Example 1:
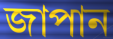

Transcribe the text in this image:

জাপান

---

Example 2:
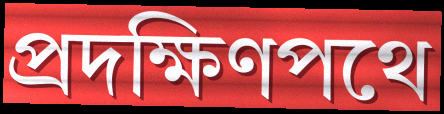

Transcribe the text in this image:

প্রদক্ষিণপথে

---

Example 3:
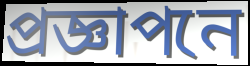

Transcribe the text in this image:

প্রজ্ঞাপনে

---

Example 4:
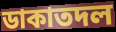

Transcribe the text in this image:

ডাকাতদল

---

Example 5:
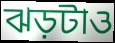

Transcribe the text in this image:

ঝড়টাও